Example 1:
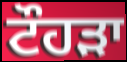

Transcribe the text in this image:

ਟੌਹਡ਼ਾ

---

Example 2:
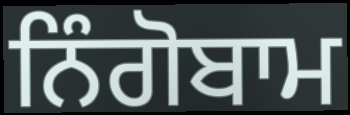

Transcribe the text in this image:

ਨਿੰਗੋਬਾਮ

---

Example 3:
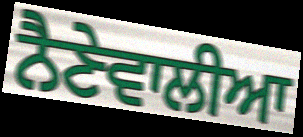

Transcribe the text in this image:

ਨੈਣੇਵਾਲੀਆ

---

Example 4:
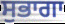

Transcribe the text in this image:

ਸੁਭਾਗਾ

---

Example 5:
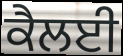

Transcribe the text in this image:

ਕੈਲਈ